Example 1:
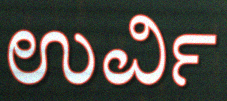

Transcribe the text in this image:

ಉರ್ವಿ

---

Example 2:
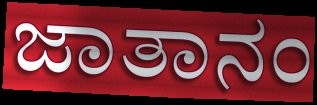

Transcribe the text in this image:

ಜಾತಾನಂ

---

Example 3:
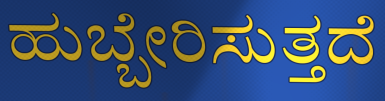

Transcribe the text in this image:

ಹುಬ್ಬೇರಿಸುತ್ತದೆ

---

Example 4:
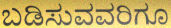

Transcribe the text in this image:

ಬಡಿಸುವವರಿಗೂ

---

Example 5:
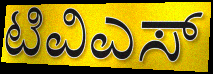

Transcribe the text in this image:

ಟಿವಿಎಸ್